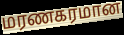
மரணகரமான